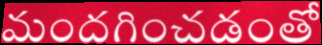
మందగించడంతో